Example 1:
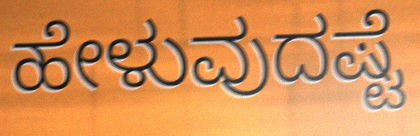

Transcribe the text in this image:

ಹೇಳುವುದಷ್ಟೆ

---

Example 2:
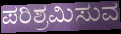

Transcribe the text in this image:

ಪರಿಶ್ರಮಿಸುವ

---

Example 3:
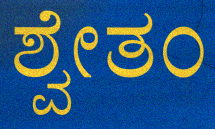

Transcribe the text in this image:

ಶ್ವೇತಂ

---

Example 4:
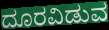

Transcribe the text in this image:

ದೂರವಿಡುವ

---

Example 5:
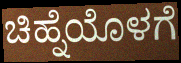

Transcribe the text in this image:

ಚಿಹ್ನೆಯೊಳಗೆ